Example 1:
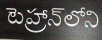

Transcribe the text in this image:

టెహ్రాన్‌లోని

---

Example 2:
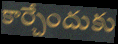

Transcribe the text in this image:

కార్చేందుకు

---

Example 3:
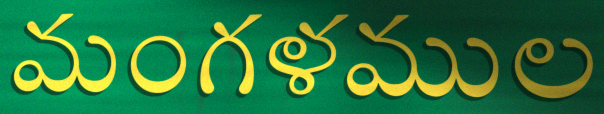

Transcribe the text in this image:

మంగళముల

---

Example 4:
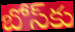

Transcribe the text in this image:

బోస్‌కు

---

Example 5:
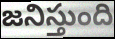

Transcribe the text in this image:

జనిస్తుంది